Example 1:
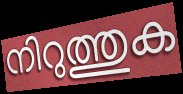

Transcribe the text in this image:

നിറുത്തുക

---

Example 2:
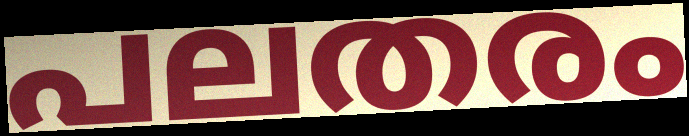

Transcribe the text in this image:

പലതരം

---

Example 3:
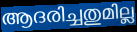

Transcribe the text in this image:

ആദരിച്ചതുമില്ല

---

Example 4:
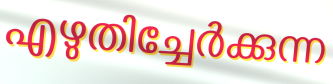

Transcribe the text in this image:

എഴുതിച്ചേർക്കുന്ന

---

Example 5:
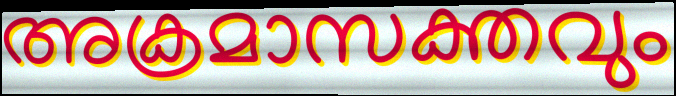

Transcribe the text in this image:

അക്രമാസക്തവും